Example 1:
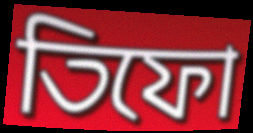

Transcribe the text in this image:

তিফো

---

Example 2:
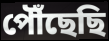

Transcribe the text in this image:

পৌঁছেছি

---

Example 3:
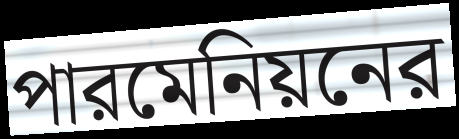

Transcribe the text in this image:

পারমেনিয়নের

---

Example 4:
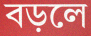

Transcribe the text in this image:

বড়লে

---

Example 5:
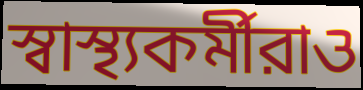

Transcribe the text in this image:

স্বাস্থ্যকর্মীরাও